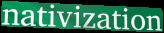
nativization